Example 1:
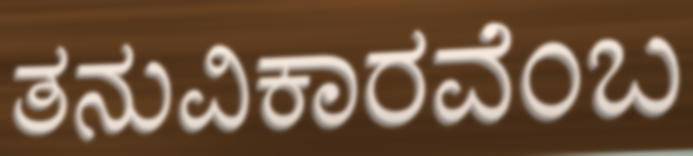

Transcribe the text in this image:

ತನುವಿಕಾರವೆಂಬ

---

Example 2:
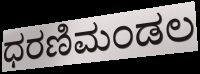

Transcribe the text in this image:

ಧರಣಿಮಂಡಲ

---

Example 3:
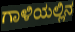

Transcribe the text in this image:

ಗಾಳಿಯಲ್ಲಿನ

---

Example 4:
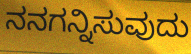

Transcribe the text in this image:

ನನಗನ್ನಿಸುವುದು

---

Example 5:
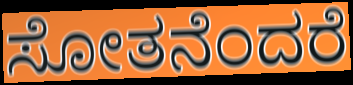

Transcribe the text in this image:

ಸೋತನೆಂದರೆ